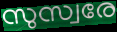
സുസ്വരേ